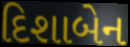
દિશાબેન